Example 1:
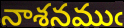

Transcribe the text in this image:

నాశనముఁ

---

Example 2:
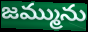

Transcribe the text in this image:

జమ్మును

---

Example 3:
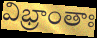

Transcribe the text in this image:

విభ్రాంతాః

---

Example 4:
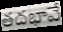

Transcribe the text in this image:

తదభావే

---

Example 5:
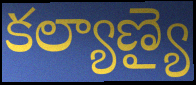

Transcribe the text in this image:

కల్యాణ్యై